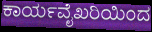
ಕಾರ್ಯವೈಖರಿಯಿಂದ